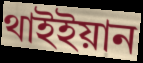
থাইইয়ান